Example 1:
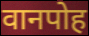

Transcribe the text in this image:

वानपोह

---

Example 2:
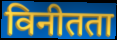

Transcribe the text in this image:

विनीतता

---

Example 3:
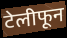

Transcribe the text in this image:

टेलीफून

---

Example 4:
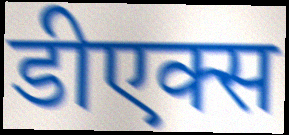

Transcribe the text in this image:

डीएक्स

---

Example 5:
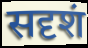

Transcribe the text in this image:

सदृशं